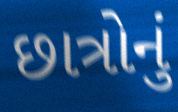
છાત્રોનું